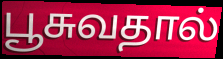
பூசுவதால்